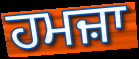
ਹਮਜ਼ਾ